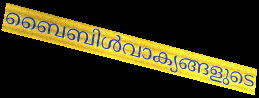
ബൈബിൾവാക്യങ്ങളുടെ